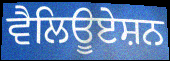
ਵੈਲਿਊਏਸ਼ਨ